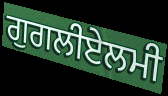
ਗੁਗਲੀਏਲਮੀ